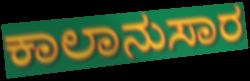
ಕಾಲಾನುಸಾರ